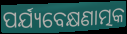
ପର୍ଯ୍ୟବେକ୍ଷଣାତ୍ମକ